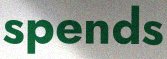
spends